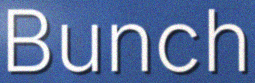
Bunch